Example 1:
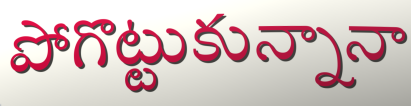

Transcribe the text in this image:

పోగొట్టుకున్నానా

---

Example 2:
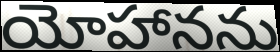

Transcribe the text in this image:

యోహానను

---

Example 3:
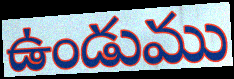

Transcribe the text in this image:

ఉండుము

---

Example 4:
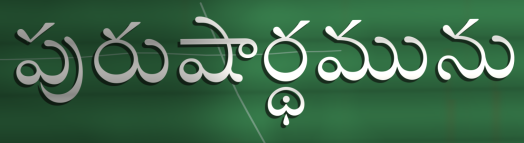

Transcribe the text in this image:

పురుషార్థమును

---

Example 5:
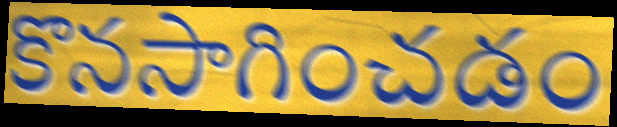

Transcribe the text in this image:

కొనసాగించడం